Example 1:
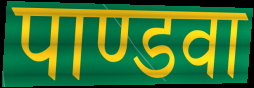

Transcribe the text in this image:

पाण्डवा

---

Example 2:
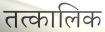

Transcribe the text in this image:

तत्कालिक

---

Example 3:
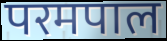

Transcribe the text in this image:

परमपाल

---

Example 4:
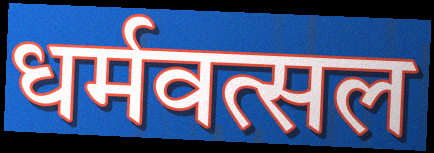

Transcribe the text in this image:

धर्मवत्सल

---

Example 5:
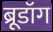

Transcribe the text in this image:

ब्रूडॉग